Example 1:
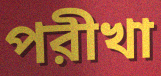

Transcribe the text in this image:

পরীখা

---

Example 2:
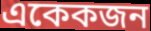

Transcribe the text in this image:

একেকজন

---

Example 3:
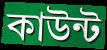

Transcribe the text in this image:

কাউন্ট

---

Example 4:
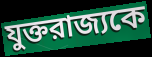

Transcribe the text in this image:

যুক্তরাজ্যকে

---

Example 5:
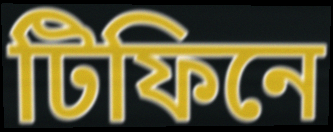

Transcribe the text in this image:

টিফিনে